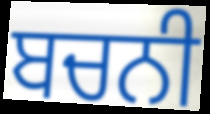
ਬਚਨੀ